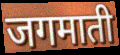
जगमाती